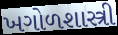
ખગોળશાસ્ત્રી